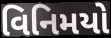
વિનિમયો